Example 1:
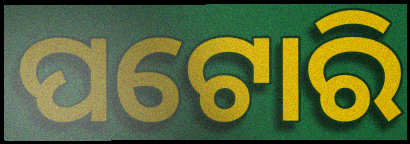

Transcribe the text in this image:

ପଟୋରି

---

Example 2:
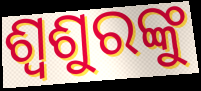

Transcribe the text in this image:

ଶ୍ୱଶୁରଙ୍କୁ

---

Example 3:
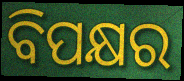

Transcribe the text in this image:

ବିପକ୍ଷର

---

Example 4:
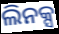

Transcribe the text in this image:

ଲିନକ୍ସ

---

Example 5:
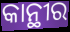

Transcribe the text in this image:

କାନ୍ଥୀର